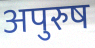
अपुरुष